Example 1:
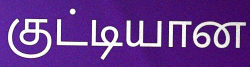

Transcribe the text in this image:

குட்டியான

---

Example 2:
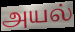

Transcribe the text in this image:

அயல்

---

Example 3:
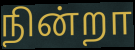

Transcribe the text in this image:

நின்றா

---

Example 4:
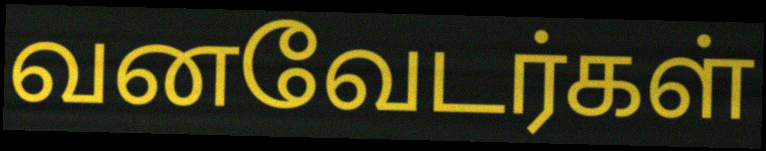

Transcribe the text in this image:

வனவேடர்கள்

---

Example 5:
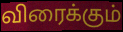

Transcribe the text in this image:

விரைக்கும்